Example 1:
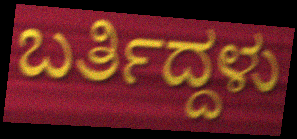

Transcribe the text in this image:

ಬರ್ತಿದ್ದಳು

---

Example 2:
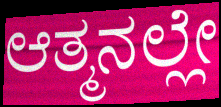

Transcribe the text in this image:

ಆತ್ಮನಲ್ಲೇ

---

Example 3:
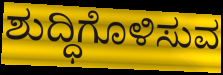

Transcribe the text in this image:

ಶುದ್ಧಿಗೊಳಿಸುವ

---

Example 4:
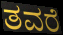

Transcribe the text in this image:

ತವರೆ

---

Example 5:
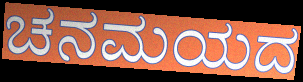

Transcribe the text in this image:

ಚನಮಯದ